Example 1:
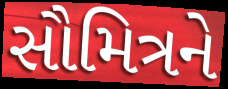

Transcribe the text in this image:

સૌમિત્રને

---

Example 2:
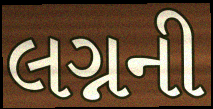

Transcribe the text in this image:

લગ્નની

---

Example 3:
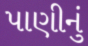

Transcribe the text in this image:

પાણીનું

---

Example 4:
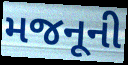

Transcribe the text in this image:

મજનૂની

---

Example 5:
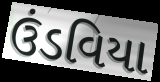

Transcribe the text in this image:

ઉંડવિયા